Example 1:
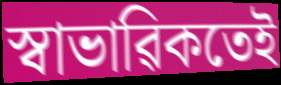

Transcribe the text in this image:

স্বাভাৱিকতেই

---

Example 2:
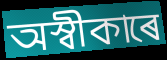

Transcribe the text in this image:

অস্বীকাৰে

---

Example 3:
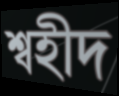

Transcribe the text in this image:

শ্বহীদ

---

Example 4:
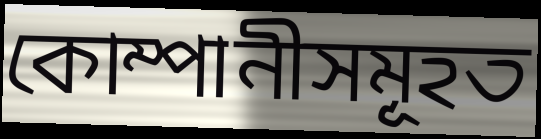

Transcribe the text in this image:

কোম্পানীসমূহত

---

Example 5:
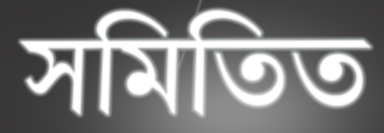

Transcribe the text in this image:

সমিতিত